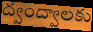
ద్వంద్వాలకు